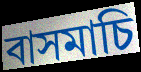
বাসমাচি